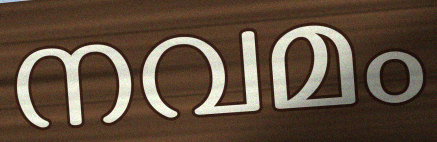
നവമം